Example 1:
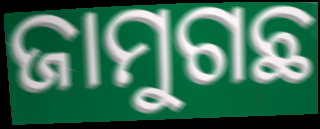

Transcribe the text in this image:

ଜାମୁଗଛ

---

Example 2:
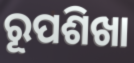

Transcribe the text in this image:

ରୂପଶିଖା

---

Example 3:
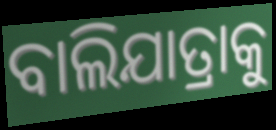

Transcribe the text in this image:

ବାଲିଯାତ୍ରାକୁ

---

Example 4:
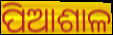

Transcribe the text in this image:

ପିଆଶାଳ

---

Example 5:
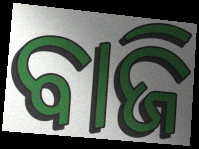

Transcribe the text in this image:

ବାଜି